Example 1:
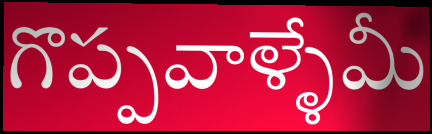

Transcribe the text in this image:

గొప్పవాళ్ళేమీ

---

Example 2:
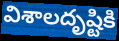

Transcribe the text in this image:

విశాలదృష్టికి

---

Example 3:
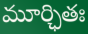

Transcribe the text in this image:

మూర్ఛితః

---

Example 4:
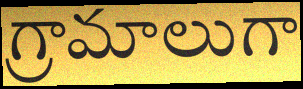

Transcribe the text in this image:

గ్రామాలుగా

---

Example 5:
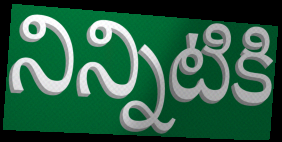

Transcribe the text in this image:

నిన్నిటికి